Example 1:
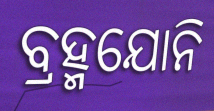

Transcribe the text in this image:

ବ୍ରହ୍ମଯୋନି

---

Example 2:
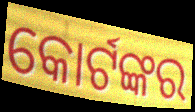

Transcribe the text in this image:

କୋର୍ଟଙ୍କର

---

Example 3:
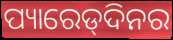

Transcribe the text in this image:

ପ୍ୟାରେଡ୍‌ଦିନର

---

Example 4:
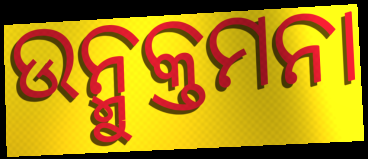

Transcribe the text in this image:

ଉନ୍ମୁକ୍ତମନା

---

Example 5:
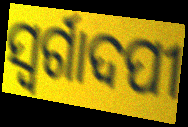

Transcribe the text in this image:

ସ୍ବର୍ଗାଦପୀ